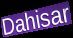
Dahisar